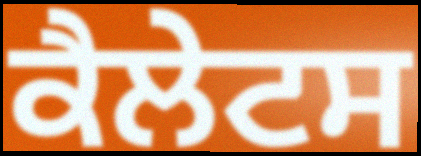
ਕੈਲੇਟਸ